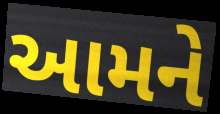
આમને